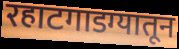
रहाटगाडग्यातून